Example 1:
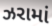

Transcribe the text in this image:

ઝરામાં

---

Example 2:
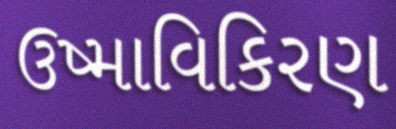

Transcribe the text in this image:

ઉષ્માવિકિરણ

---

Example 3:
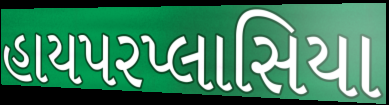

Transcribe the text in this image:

હાયપરપ્લાસિયા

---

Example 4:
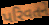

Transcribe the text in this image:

પરિવતને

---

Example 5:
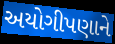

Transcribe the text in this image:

અયોગીપણાને